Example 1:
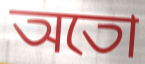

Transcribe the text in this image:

অতো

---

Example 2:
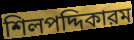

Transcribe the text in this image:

শিলপদ্দিকারম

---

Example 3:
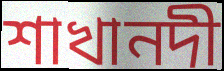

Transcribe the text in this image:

শাখানদী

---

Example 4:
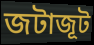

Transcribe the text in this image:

জটাজূট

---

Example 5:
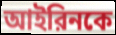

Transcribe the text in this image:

আইরিনকে